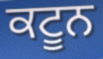
ਕਟੂਨ